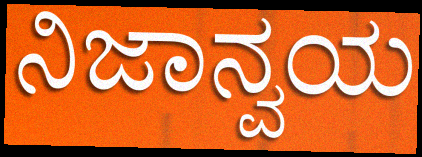
ನಿಜಾನ್ವಯ